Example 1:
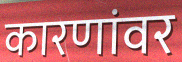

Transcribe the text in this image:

कारणांवर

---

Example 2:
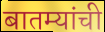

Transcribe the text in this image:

बातम्यांची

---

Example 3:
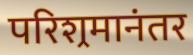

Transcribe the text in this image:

परिश्रमानंतर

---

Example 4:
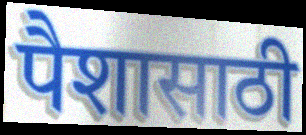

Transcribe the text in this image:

पैशासाठी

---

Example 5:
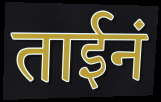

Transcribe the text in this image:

ताईनं